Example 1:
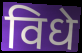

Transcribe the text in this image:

विधे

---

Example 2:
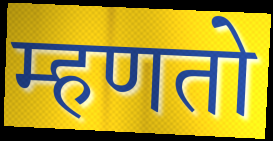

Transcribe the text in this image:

म्हणतो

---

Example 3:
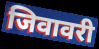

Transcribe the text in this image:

जिवावरी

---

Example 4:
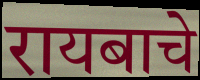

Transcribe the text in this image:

रायबाचे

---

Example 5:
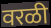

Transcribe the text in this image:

वरळी